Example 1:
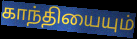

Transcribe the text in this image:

காந்தியையும்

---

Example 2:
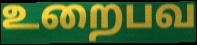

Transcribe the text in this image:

உறைபவ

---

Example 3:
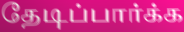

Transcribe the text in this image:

தேடிப்பார்க்க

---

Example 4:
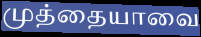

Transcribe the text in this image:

முத்தையாவை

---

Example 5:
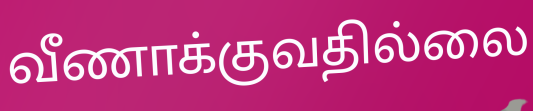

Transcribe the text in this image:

வீணாக்குவதில்லை